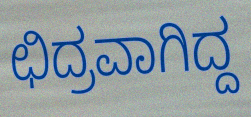
ಛಿದ್ರವಾಗಿದ್ದ